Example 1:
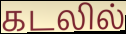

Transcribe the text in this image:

கடலில்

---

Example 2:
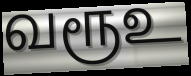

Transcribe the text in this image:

வரூஉ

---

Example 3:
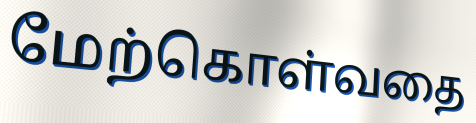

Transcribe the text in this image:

மேற்கொள்வதை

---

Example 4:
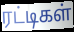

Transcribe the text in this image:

ரட்டிகள்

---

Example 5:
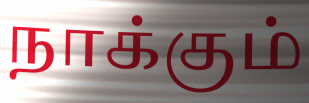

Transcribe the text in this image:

நாக்கும்